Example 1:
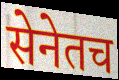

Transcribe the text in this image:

सेनेतच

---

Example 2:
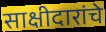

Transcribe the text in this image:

साक्षीदारांचे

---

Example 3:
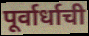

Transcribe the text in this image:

पूर्वार्धाची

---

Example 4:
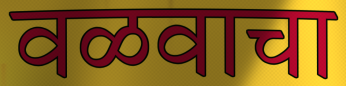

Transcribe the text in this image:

वळवाचा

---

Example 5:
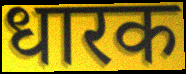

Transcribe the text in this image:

धारक